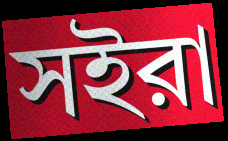
সইরা